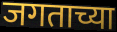
जगताच्या